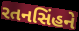
રતનસિંહને